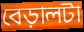
বেড়ালটা